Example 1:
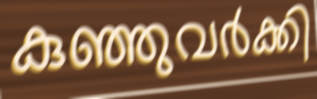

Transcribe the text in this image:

കുഞ്ഞുവർക്കി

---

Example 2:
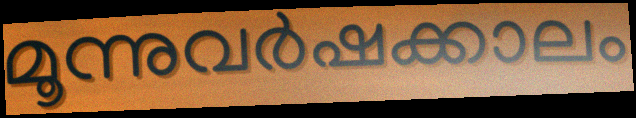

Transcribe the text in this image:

മൂന്നുവർഷക്കാലം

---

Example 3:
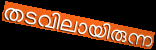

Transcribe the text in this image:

തടവിലായിരുന്ന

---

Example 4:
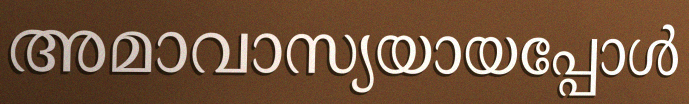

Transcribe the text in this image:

അമാവാസ്യയായപ്പോൾ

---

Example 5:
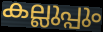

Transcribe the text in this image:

കല്ലുപ്പും